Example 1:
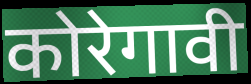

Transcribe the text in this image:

कोरेगावी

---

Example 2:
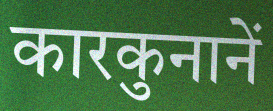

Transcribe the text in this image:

कारकुनानें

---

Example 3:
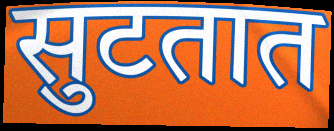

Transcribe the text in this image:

सुटतात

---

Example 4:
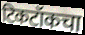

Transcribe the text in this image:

टिकटॉकचा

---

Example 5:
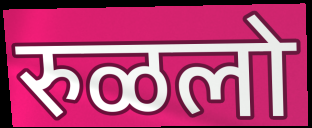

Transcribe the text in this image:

रुळलो